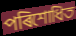
পৰিশোধিত